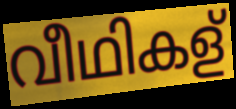
വീഥികള്